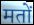
मतों